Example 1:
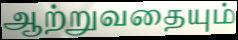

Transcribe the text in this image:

ஆற்றுவதையும்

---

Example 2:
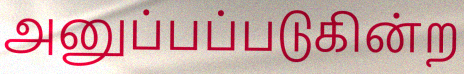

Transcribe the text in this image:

அனுப்பப்படுகின்ற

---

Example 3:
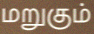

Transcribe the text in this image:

மறுகும்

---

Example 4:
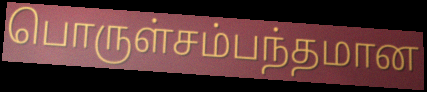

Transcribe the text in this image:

பொருள்சம்பந்தமான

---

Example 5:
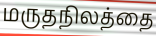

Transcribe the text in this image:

மருதநிலத்தை